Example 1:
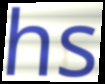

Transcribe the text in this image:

hs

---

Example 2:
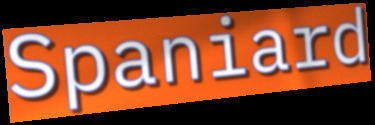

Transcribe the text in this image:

Spaniard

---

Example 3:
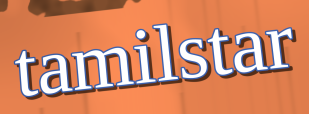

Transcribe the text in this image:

tamilstar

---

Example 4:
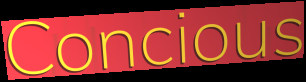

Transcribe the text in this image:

Concious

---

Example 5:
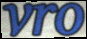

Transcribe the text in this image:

vro